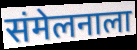
संमेलनाला